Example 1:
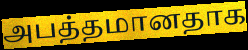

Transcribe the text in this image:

அபத்தமானதாக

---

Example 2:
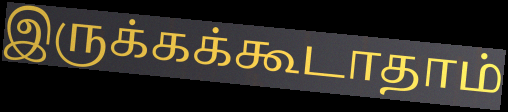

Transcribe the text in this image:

இருக்கக்கூடாதாம்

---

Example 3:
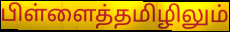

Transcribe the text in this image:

பிள்ளைத்தமிழிலும்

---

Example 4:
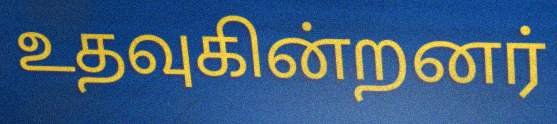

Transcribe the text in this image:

உதவுகின்றனர்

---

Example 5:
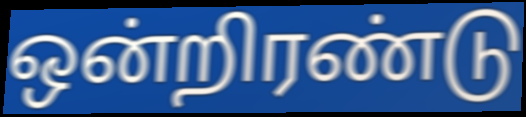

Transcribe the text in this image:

ஒன்றிரண்டு